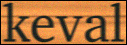
keval